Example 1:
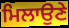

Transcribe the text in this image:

ਮਿਲਾਉਣੇ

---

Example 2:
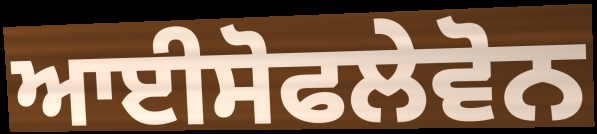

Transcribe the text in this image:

ਆਈਸੋਫਲੇਵੋਨ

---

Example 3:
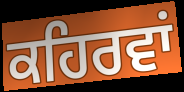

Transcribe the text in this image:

ਕਹਿਰਵਾਂ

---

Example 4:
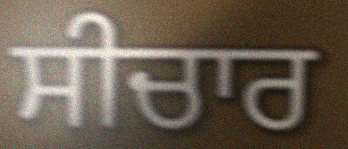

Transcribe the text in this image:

ਸੀਚਾਰ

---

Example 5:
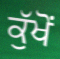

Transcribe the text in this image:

ਕੁੱਖੋਂ